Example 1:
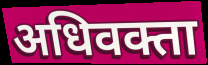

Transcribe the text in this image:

अधिवक्ता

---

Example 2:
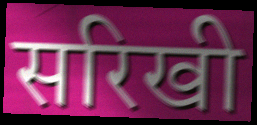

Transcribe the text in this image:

सरिखी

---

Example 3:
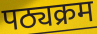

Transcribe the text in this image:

पठ्यक्रम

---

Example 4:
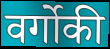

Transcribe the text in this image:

वर्गोकी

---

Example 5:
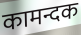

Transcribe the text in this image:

कामन्दक